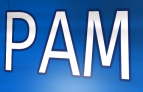
PAM